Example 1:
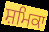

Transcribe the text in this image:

ਸ਼ਮਿਕਾ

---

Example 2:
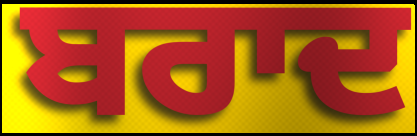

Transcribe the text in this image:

ਬਰਾਦ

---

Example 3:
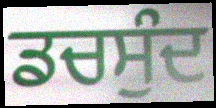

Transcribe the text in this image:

ਡਚਸੁੰਦ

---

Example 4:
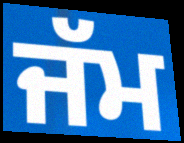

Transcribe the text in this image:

ਜੱਮ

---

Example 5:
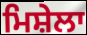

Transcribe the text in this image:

ਮਿਸ਼ੇਲਾ